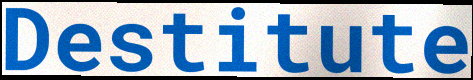
Destitute